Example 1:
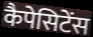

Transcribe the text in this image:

कैपेसिटेंस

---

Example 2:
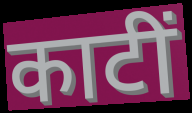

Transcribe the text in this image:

काटीं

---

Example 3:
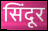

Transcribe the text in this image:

सिंदूर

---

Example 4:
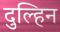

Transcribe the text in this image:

दुल्हिन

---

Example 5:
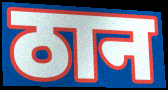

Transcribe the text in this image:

ठान